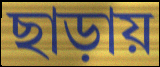
ছাড়ায়